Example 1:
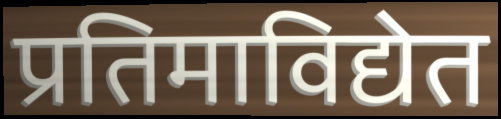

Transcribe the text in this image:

प्रतिमाविद्येत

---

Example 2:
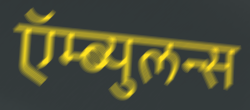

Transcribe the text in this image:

ऍम्ब्युलन्स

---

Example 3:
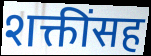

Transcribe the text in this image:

शक्तींसह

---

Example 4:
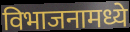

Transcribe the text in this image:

विभाजनामध्ये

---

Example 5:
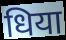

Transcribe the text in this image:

धिया